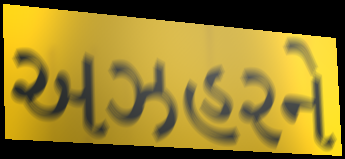
અઝહરને